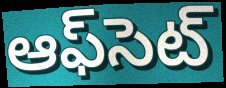
ఆఫ్‌సెట్